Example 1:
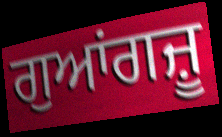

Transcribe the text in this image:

ਗੁਆਂਗਜ਼ੂ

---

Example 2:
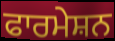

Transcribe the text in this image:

ਫਾਰਮੇਸ਼ਨ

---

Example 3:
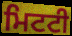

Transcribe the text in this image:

ਮਿਟਟੀ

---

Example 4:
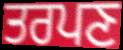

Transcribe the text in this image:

ਤਰਪਣ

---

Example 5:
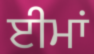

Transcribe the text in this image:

ਈਮਾਂ